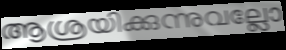
ആശ്രയിക്കുന്നുവല്ലോ